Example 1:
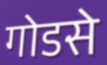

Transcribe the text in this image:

गोडसे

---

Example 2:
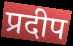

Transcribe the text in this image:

प्रदीप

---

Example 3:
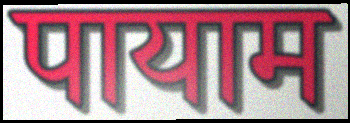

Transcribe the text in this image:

पायाम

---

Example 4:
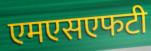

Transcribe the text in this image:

एमएसएफटी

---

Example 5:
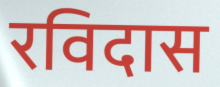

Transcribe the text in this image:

रविदास